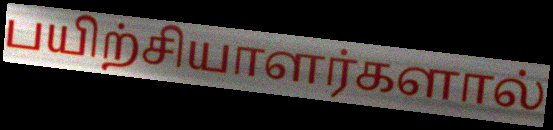
பயிற்சியாளர்களால்